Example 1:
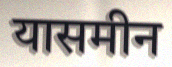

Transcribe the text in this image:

यासमीन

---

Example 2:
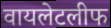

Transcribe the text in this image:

वायलेटलीफ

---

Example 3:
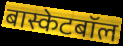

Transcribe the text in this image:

बास्केटबॉल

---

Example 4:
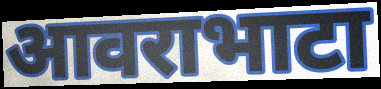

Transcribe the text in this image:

आवराभाटा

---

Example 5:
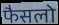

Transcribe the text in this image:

फैसलो